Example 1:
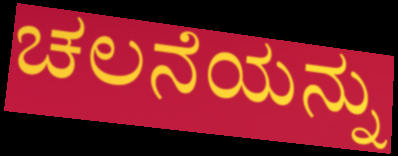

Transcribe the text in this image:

ಚಲನೆಯನ್ನು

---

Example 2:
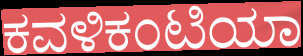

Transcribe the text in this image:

ಕವಳಿಕಂಟಿಯಾ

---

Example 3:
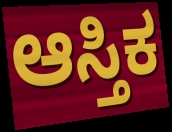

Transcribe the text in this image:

ಆಸ್ತಿಕ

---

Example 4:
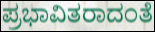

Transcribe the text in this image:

ಪ್ರಭಾವಿತರಾದಂತೆ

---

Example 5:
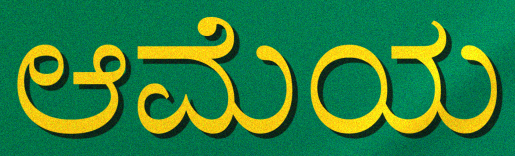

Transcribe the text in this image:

ಆಮೆಯ